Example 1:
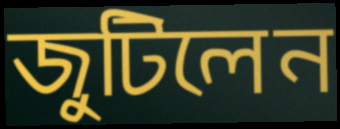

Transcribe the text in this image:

জুটিলেন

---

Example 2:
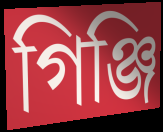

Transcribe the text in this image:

গিঞ্জি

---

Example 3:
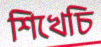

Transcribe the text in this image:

শিখেচি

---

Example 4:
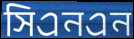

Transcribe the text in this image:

সিএনএন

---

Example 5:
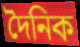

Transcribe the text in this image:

দৈনিক